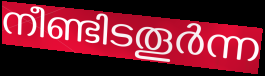
നീണ്ടിടതൂർന്ന